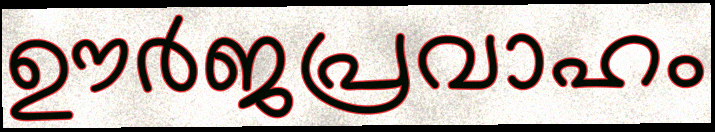
ഊർജപ്രവാഹം